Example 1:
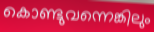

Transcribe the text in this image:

കൊണ്ടുവന്നെങ്കിലും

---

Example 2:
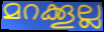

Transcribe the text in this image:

മറക്കൂല്ല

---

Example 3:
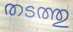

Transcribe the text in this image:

തടത്തു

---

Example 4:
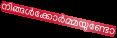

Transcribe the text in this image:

നിങ്ങൾക്കോർമ്മയുണ്ടോ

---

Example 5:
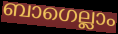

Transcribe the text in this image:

ബാഗെല്ലാം